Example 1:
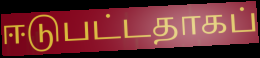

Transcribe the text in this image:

ஈடுபட்டதாகப்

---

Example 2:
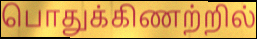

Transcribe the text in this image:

பொதுக்கிணற்றில்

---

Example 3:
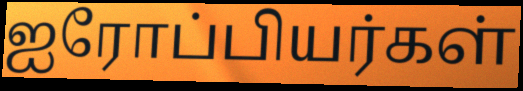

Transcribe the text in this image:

ஐரோப்பியர்கள்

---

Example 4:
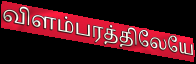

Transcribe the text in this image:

விளம்பரத்திலேயே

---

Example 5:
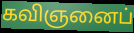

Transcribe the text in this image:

கவிஞனைப்